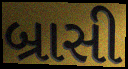
બ્રાસી